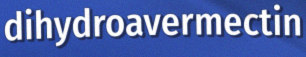
dihydroavermectin